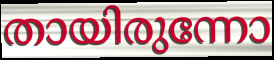
തായിരുന്നോ